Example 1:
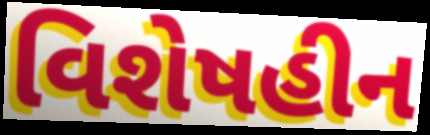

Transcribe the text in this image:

વિશેષહીન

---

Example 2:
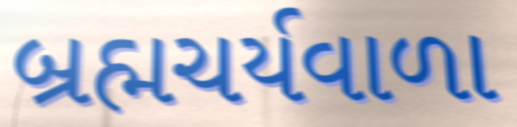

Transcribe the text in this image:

બ્રહ્મચર્યવાળા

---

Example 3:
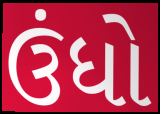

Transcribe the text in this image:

ઉંધો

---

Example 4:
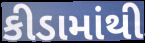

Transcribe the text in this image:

કીડામાંથી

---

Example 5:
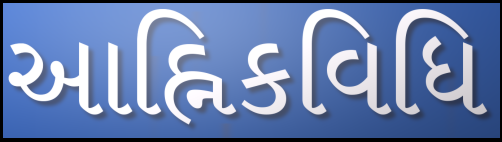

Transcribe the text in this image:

આહ્નિકવિધિ